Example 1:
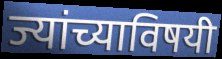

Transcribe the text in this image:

ज्यांच्याविषयी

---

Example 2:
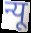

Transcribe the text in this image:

न्यू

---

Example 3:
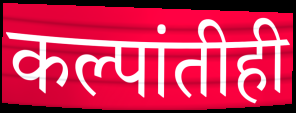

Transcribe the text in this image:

कल्पांतीही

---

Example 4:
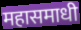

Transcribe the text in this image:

महासमाधी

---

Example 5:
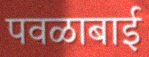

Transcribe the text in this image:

पवळाबाई